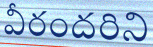
వీరందరిని